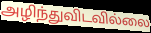
அழிந்துவிடவில்லை